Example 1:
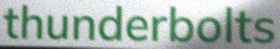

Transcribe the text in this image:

thunderbolts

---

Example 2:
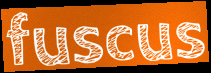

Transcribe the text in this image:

fuscus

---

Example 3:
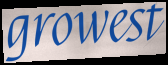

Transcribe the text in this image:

growest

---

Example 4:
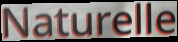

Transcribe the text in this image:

Naturelle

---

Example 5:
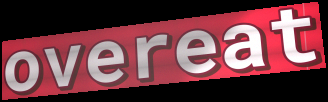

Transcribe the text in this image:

overeat